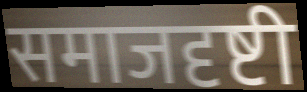
समाजदृष्टी